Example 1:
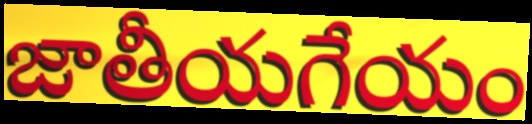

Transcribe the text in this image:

జాతీయగేయం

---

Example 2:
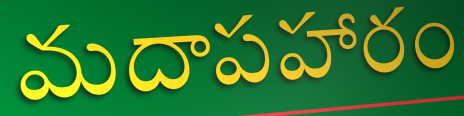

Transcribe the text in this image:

మదాపహారం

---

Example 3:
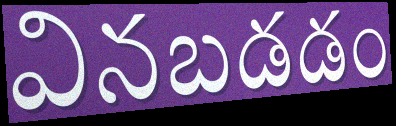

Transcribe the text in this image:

వినబడడం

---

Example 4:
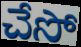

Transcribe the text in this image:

చేసో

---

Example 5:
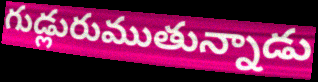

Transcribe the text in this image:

గుడ్లురుముతున్నాడు